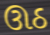
ઊઠ